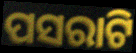
ପସରାଟି